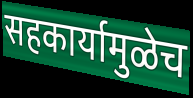
सहकार्यामुळेच